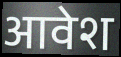
आवेश